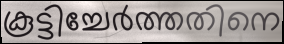
കൂട്ടിച്ചേർത്തതിനെ